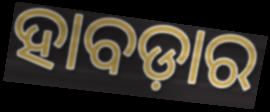
ହାବଡ଼ାର